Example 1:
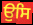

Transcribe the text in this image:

ਉਸਿ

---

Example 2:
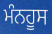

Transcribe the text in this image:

ਮੰਨਹੂਸ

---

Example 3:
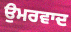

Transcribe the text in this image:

ਉਮਰਵਾਦ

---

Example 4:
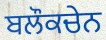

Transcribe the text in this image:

ਬਲੌਕਚੇਨ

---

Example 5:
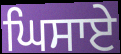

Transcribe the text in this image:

ਘਿਸਾਏ